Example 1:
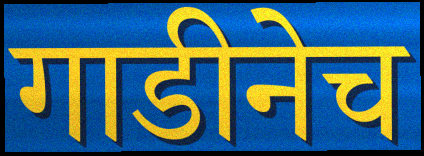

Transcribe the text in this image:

गाडीनेच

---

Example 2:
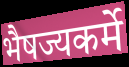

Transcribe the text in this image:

भैषज्यकर्मे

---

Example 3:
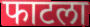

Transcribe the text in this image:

फाटला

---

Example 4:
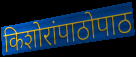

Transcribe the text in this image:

किशोरांपाठोपाठ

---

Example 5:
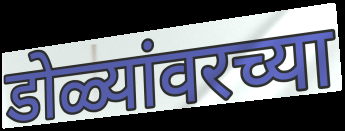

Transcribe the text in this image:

डोळ्यांवरच्या